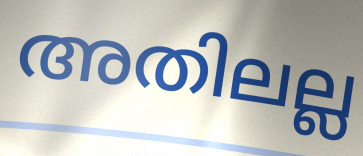
അതിലല്ല